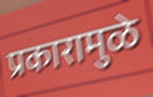
प्रकारामुळे